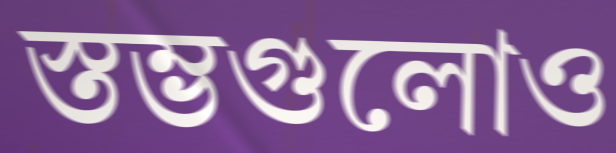
স্তম্ভগুলোও